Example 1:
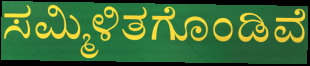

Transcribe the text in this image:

ಸಮ್ಮಿಳಿತಗೊಂಡಿವೆ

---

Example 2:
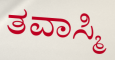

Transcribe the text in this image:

ತವಾಸ್ಮಿ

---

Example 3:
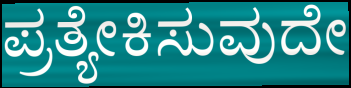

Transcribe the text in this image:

ಪ್ರತ್ಯೇಕಿಸುವುದೇ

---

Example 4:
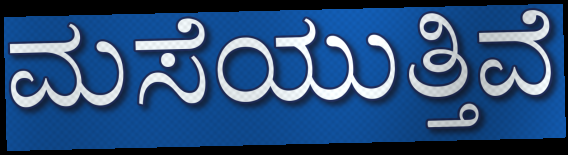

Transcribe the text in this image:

ಮಸೆಯುತ್ತಿವೆ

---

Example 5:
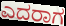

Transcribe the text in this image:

ಎದರಾಗ